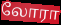
லோரா